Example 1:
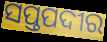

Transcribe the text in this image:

ସପ୍ତପଦୀର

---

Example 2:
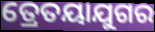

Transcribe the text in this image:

ତ୍ରେତୟାଯୁଗର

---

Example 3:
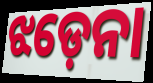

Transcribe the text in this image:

ଝଡ଼େନା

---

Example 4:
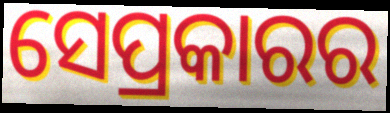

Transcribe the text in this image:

ସେପ୍ରକାରର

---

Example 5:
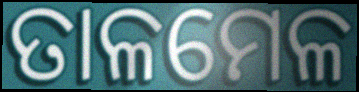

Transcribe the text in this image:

ତାଳମେଳ